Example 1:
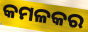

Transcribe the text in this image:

କମଳକର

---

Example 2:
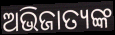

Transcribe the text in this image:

ଅଭିଜାତ୍ୟଙ୍କ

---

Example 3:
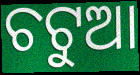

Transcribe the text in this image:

ଚଟୁଆ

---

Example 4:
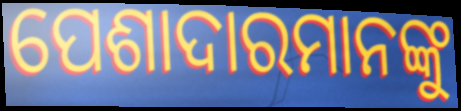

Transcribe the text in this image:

ପେଶାଦାରମାନଙ୍କୁ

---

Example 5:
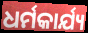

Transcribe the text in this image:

ଧର୍ମକାର୍ଯ୍ୟ